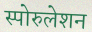
स्पोरुलेशन